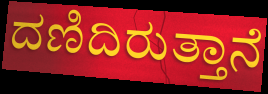
ದಣಿದಿರುತ್ತಾನೆ